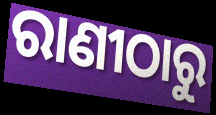
ରାଣୀଠାରୁ